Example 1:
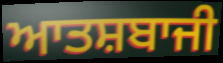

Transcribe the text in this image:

ਆਤਸ਼ਬਾਜੀ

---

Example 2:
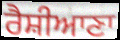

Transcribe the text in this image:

ਰੈਸ਼ੀਆਣਾ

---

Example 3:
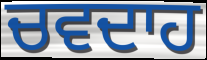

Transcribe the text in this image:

ਚਵਦਾਹ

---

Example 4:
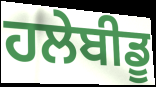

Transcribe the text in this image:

ਹਲੇਬੀਡੂ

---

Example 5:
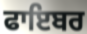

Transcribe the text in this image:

ਫਾਇਬਰ